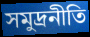
সমুদ্রনীতি